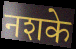
नशके